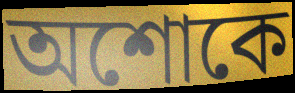
অশোকে